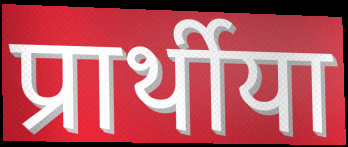
प्रार्थीया